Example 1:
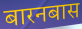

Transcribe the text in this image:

बारनबास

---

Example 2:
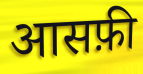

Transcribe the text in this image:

आसफ़ी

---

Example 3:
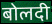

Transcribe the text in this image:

बोलदी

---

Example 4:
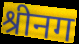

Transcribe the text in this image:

श्रीनग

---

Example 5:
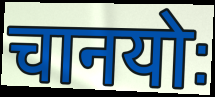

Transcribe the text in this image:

चानयोः